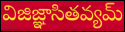
విజిజ్ఞాసితవ్యమ్